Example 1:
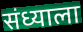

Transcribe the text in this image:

संध्याला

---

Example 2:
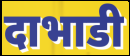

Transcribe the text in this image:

दाभाडी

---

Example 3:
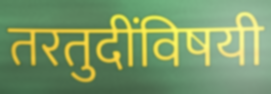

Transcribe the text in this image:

तरतुदींविषयी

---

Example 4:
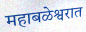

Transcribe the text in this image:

महाबळेश्वरात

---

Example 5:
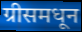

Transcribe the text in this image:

ग्रीसमधून